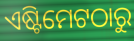
ଏଷ୍ଟିମେଟଠାରୁ